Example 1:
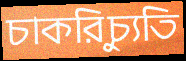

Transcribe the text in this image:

চাকরিচ্যুতি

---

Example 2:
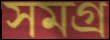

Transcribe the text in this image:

সমগ্র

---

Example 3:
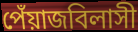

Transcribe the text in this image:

পেঁয়াজবিলাসী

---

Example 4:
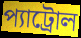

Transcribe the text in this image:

প্যাট্রোল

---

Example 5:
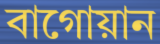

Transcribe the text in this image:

বাগোয়ান